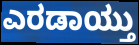
ಎರಡಾಯ್ತು